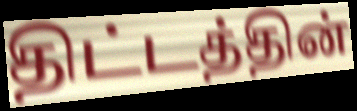
திட்டத்தின்